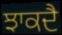
ਝਾਕਦੈ